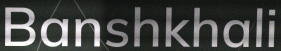
Banshkhali